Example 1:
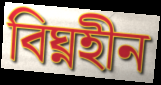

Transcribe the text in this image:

বিঘ্নহীন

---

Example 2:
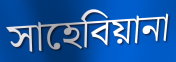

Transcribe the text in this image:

সাহেবিয়ানা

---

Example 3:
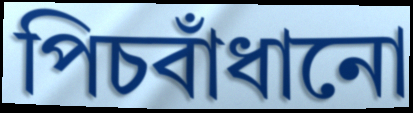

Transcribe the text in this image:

পিচবাঁধানো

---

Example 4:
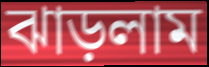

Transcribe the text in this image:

ঝাড়লাম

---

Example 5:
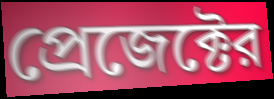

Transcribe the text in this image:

প্রেজেক্টের